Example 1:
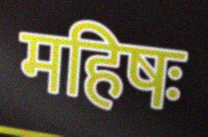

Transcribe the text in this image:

महिषः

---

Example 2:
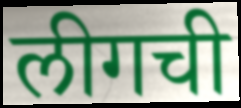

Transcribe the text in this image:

लीगची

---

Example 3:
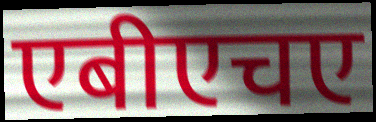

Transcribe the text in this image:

एबीएचए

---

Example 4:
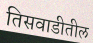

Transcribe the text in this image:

तिसवाडीतील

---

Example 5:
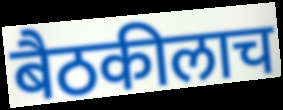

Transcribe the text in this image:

बैठकीलाच